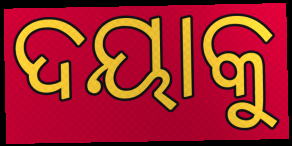
ଦୟାକୁ